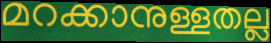
മറക്കാനുള്ളതല്ല